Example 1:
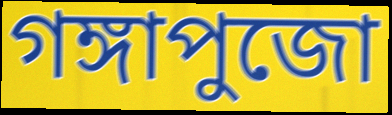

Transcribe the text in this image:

গঙ্গাপুজো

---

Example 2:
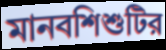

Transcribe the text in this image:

মানবশিশুটির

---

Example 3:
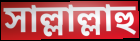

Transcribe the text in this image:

সাল্লাল্লাহু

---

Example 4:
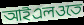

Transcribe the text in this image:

আইএলওতে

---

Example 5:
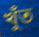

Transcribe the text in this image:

খুঁত